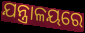
ଯନ୍ତ୍ରାଳୟରେ